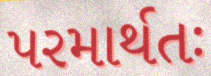
પરમાર્થતઃ